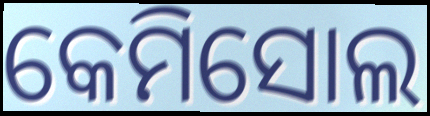
କେମିସୋଲ